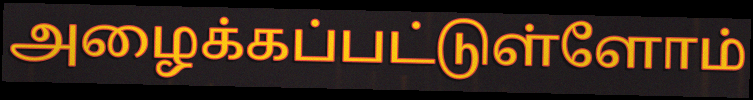
அழைக்கப்பட்டுள்ளோம்